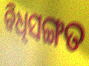
ବିଧିସଙ୍ଗତ